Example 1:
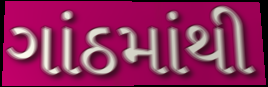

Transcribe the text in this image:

ગાંઠમાંથી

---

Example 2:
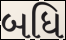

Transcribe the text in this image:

બધિ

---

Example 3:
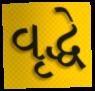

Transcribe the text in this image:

વૃદ્ધે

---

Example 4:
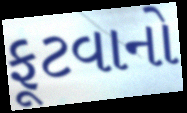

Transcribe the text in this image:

ફૂટવાનો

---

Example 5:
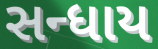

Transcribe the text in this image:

સન્ધાય